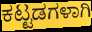
ಕಟ್ಟಡಗಳಾಗಿ